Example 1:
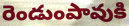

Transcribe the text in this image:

రెండుంపావుకి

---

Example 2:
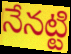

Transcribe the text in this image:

నేనట్టి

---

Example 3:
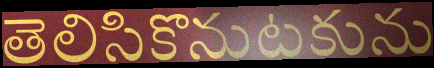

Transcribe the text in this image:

తెలిసికొనుటకును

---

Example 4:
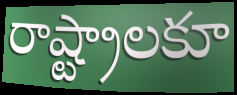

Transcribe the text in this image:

రాష్ట్రాలకూ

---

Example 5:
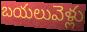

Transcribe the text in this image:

బయలువెళ్లు